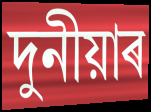
দুনীয়াৰ